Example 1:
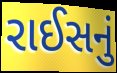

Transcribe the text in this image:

રાઈસનું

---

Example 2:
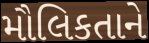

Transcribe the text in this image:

મૌલિકતાને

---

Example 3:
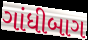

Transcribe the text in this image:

ગાંધીબાગ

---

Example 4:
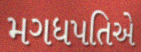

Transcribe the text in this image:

મગધપતિએ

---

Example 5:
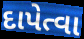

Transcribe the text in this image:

દાપેત્વા